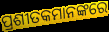
ପ୍ରଶୀତକମାନଙ୍କରେ